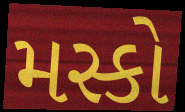
મસ્કો